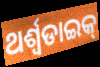
ଥର୍ଶ୍ଵଡାଇକ୍